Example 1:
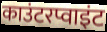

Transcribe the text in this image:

काउंटरप्वाइंट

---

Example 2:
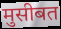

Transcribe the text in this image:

मुसीबत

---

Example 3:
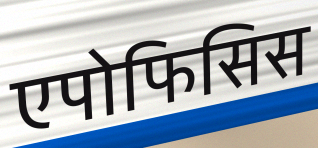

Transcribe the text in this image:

एपोफिसिस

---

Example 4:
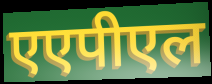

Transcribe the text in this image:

एएपीएल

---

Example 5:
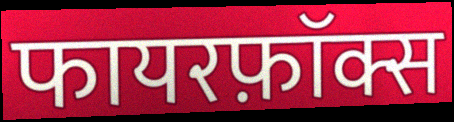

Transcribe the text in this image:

फायरफ़ॉक्स